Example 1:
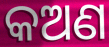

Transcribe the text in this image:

କଅଣ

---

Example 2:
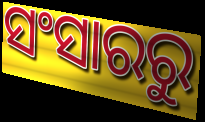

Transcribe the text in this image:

ସଂସାରରୁ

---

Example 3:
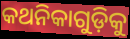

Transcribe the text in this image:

କଥନିକାଗୁଡ଼ିକୁ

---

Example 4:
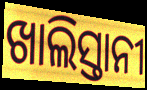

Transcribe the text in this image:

ଖାଲିସ୍ତାନୀ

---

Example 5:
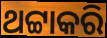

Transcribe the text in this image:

ଥଟ୍ଟାକରି